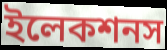
ইলেকশনস